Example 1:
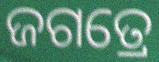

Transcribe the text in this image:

ଜଗତ୍ରେ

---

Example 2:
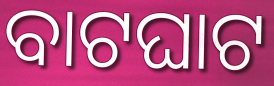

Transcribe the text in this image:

ବାଟଘାଟ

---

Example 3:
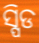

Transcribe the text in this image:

ସ୍ପିଡ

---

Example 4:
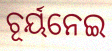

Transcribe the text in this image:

ଚୂର୍ୟନେଇ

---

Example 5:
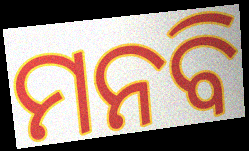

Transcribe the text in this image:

ମନବି